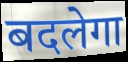
बदलेगा